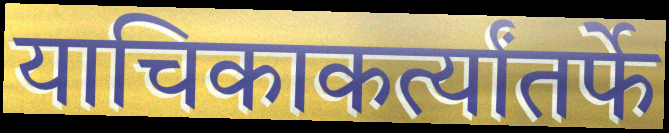
याचिकाकर्त्यांतर्फे